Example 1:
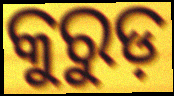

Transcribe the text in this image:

କୁରୁଡ଼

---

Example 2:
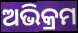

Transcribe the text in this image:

ଅଭିକ୍ରମ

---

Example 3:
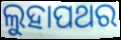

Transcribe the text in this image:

ଲୁହାପଥର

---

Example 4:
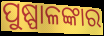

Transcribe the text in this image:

ପୁଷ୍ପାଳଙ୍କାର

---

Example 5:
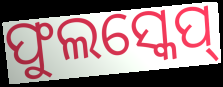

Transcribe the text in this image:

ଫୁଲସ୍କେପ୍